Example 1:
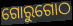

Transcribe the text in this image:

ଗୋରୁଗୋଠ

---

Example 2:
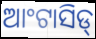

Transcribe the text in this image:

ଆଂଟାସିଡ୍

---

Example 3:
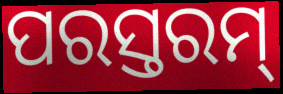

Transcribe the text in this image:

ପରସ୍ତରମ୍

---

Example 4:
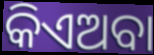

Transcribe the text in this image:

କିଏଅବା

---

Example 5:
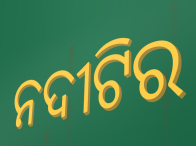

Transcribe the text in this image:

ନଦୀଟିର